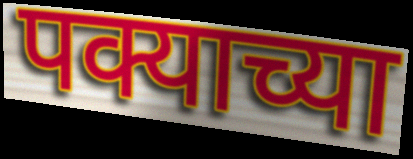
पक्याच्या